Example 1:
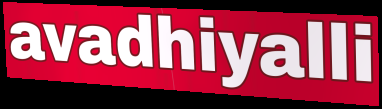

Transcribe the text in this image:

avadhiyalli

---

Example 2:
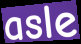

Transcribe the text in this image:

asle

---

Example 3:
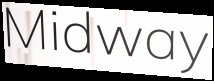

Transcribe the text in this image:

Midway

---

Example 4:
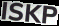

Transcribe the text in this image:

ISKP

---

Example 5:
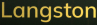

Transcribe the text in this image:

Langston